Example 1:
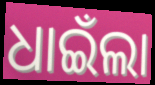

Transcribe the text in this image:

ଧାଇଁଲା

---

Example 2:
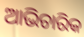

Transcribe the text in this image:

ଆଭିଚାରିକ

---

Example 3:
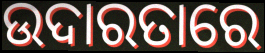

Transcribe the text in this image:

ଉଦାରତାରେ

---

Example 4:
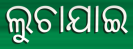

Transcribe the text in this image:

ଲୁଚାଯାଇ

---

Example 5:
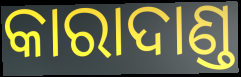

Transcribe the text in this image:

କାରାଦାଣ୍ଡ